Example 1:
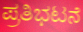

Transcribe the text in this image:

ಪ್ರತಿಭಟನೆ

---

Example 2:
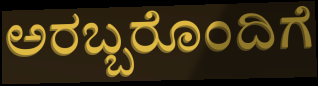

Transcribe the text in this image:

ಅರಬ್ಬರೊಂದಿಗೆ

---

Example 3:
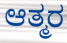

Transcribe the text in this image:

ಆತ್ಮರ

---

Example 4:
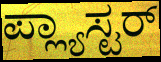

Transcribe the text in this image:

ಪ್ಲ್ಯಾಸ್ಟರ್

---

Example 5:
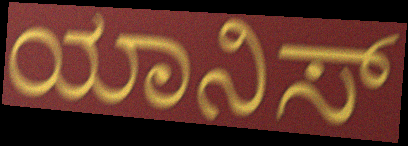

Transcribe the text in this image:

ಯಾನಿಸ್